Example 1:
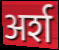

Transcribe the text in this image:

अर्श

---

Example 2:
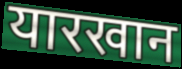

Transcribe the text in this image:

यारखान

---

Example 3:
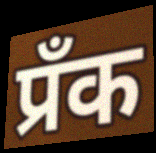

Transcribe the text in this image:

प्रँक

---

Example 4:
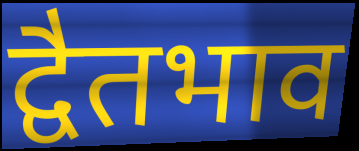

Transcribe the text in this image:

द्वैतभाव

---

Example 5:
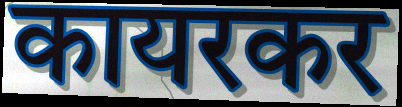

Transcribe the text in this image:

कायरकर